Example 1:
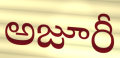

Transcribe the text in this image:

అజూరీ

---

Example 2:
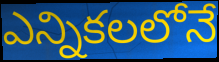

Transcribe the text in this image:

ఎన్నికలలోనే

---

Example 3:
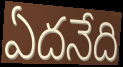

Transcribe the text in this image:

ఏదనేది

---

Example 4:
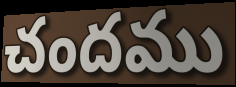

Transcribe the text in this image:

చందము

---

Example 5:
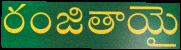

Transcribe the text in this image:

రంజితాయై